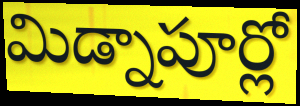
మిడ్నాపూర్లో